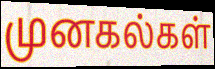
முனகல்கள்